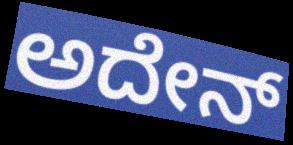
ಅದೇನ್